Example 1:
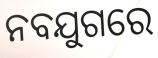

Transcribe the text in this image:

ନବଯୁଗରେ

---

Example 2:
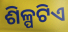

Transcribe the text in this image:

ଶିଳ୍ପଟିଏ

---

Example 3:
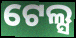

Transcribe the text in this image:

ଟେଲ୍ସ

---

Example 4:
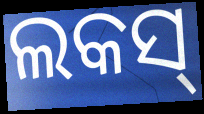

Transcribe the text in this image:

ଲକସ୍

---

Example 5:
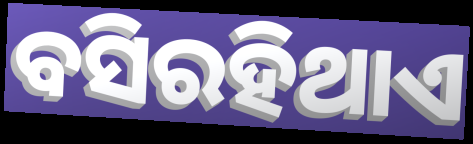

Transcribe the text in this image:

ବସିରହିଥାଏ